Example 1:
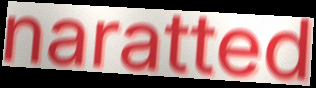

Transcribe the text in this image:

naratted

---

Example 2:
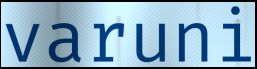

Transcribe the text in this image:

varuni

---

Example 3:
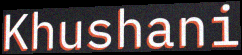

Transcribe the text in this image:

Khushani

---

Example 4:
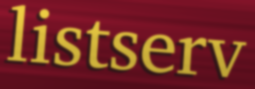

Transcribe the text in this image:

listserv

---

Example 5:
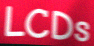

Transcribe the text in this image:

LCDs